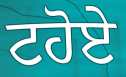
ਟਹੋਏ